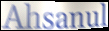
Ahsanul